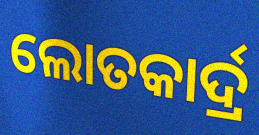
ଲୋତକାର୍ଦ୍ର